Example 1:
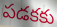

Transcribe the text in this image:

పడకకు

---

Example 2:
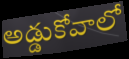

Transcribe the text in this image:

అడ్డుకోవాలో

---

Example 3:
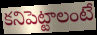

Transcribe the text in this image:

కనిపెట్టాలంటే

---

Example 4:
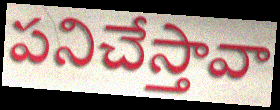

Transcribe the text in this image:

పనిచేస్తావా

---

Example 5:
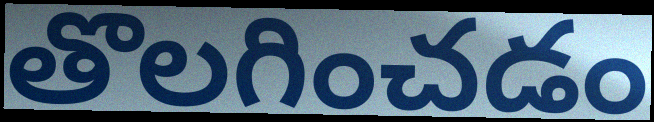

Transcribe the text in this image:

తొలగించడం